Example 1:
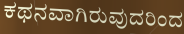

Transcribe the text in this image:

ಕಥನವಾಗಿರುವುದರಿಂದ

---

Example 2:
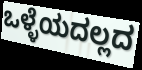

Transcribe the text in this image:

ಒಳ್ಳೆಯದಲ್ಲದ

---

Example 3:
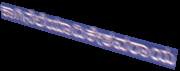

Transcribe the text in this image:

ಕಾಗಿನೆಲೆಯಾದಿಕೇಶವರಾಯ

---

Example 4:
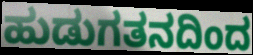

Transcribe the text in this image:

ಹುಡುಗತನದಿಂದ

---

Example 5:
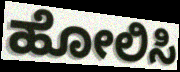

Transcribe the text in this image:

ಹೋಲಿಸಿ